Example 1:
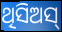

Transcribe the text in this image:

ଥିସିଅସ୍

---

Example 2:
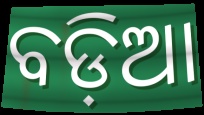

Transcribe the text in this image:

ବଡ଼ିଆ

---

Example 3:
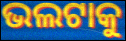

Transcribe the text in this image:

ଭଲଟାକୁ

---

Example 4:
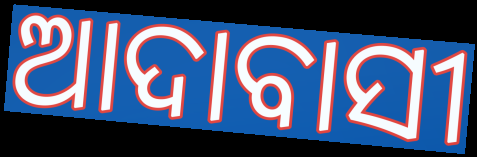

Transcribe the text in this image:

ଆଦାବାସୀ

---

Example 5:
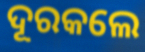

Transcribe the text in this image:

ଦୂରକଲେ